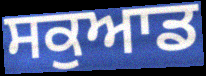
ਸਕੁਆਡ